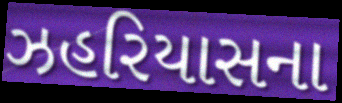
ઝહરિયાસના